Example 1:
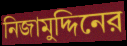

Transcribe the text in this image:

নিজামুদ্দিনের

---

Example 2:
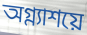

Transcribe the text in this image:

অগ্ন্যাশয়ে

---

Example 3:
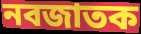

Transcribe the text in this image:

নবজাতক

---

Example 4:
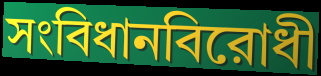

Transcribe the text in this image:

সংবিধানবিরোধী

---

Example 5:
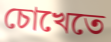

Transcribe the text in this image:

চোখেতে